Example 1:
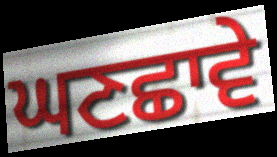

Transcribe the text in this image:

ਘਣਛਾਵੇ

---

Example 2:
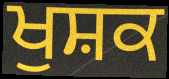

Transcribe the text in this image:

ਖੁਸ਼ਕ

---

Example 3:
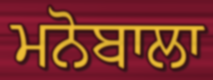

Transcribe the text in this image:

ਮਨੋਬਾਲਾ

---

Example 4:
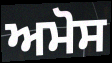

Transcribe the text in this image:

ਅਮੋਸ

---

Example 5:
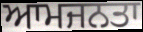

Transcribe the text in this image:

ਆਮਜਨਤਾ